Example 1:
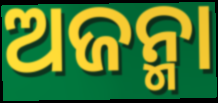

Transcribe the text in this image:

ଅଜନ୍ମା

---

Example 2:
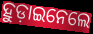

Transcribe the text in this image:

ହୁଡ଼ାଇନେଲେ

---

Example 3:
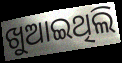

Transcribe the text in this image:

ଖୁଆଇଥିଲି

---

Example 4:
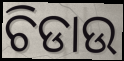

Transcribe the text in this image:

ଚିଡାଉ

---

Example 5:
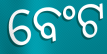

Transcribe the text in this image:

ବେଂଟ